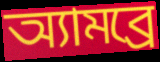
অ্যামব্রে